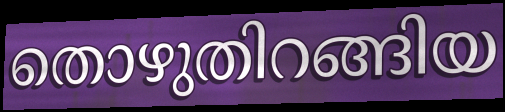
തൊഴുതിറങ്ങിയ